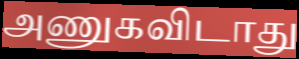
அணுகவிடாது